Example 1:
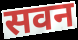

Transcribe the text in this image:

सवन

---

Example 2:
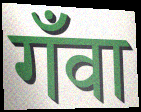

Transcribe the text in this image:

गँवा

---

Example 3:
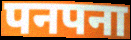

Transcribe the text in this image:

पनपना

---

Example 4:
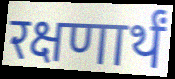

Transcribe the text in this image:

रक्षणार्थं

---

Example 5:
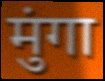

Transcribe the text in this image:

मुंगा